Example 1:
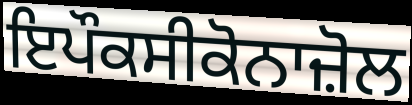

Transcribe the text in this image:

ਇਪੌਕਸੀਕੋਨਾਜ਼ੋਲ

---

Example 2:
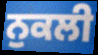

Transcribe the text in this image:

ਨੁਕਲੀ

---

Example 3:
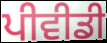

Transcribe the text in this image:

ਪੀਵੀਡੀ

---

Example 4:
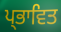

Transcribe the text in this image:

ਪ੍ਭਾਵਿਤ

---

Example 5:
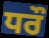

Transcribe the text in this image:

ਧਰੌ